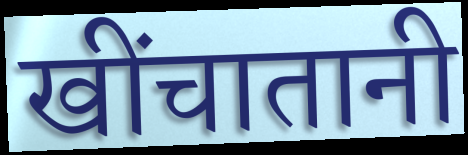
खींचातानी